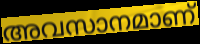
അവസാനമാണ്